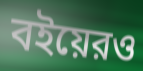
বইয়েরও